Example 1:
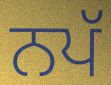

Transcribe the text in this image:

ਨਪੱ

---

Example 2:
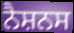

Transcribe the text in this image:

ਨੈਸ਼ਨਸ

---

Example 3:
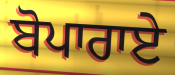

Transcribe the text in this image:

ਬੋਪਾਰਾਏ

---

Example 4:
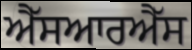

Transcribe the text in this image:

ਐੱਸਆਰਐੱਸ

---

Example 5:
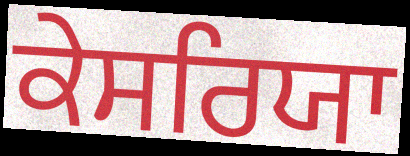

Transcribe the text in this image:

ਕੇਸਰਿਯਾ